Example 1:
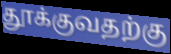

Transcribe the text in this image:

தூக்குவதற்கு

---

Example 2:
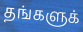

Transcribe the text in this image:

தங்களுக்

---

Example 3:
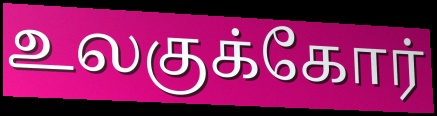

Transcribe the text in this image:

உலகுக்கோர்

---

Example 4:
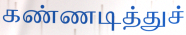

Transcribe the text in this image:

கண்ணடித்துச்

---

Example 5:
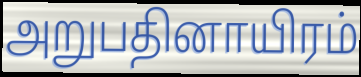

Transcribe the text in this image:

அறுபதினாயிரம்